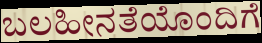
ಬಲಹೀನತೆಯೊಂದಿಗೆ